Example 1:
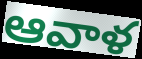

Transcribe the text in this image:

ఆవాళ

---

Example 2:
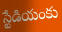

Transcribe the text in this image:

స్టేడియంకు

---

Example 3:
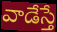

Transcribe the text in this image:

వాడేస్తే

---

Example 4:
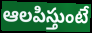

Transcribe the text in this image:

ఆలపిస్తుంటే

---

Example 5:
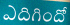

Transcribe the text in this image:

ఎదిగిందో